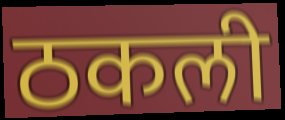
ठकली